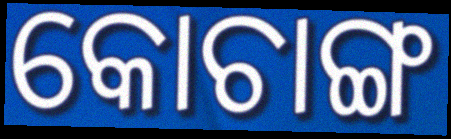
କୋଚାଙ୍ଗ